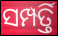
ସମ୍ପର୍ତ୍ତି